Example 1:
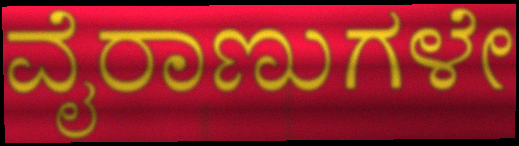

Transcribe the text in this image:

ವೈರಾಣುಗಳೇ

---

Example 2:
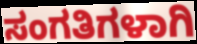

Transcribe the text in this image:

ಸಂಗತಿಗಳಾಗಿ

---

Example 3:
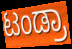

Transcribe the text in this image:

ಟಂಡ್ರಾ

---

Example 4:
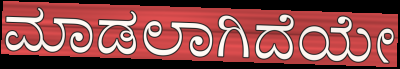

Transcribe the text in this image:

ಮಾಡಲಾಗಿದೆಯೇ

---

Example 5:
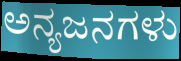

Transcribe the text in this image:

ಅನ್ಯಜನಗಳು